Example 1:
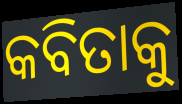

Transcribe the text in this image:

କବିତାକୁ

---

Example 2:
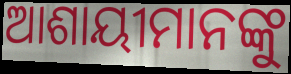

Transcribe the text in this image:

ଆଶାୟୀମାନଙ୍କୁ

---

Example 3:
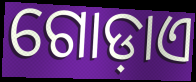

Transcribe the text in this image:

ଗୋଡ଼ାଏ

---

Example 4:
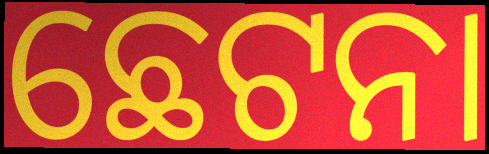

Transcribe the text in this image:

ଛେଟନା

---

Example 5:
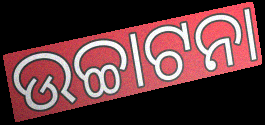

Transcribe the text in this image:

ଉଚ୍ଚାଟନା